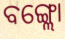
ବଙ୍ଗ୍ଲୋ